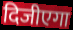
दिजीएगा